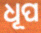
ଧୂପ